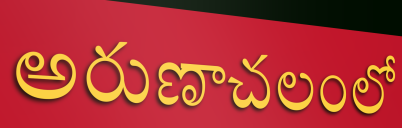
అరుణాచలంలో